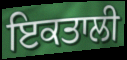
ਇਕਤਾਲੀ